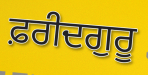
ਫ਼ਰੀਦਗੁਰੂ